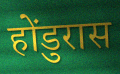
होंडुरास